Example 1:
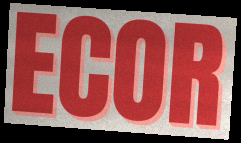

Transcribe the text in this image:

ECOR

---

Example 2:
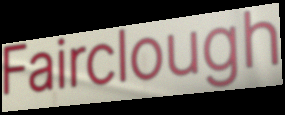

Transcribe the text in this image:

Fairclough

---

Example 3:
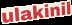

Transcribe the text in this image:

ulakinil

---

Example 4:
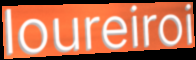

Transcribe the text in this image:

loureiroi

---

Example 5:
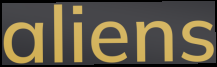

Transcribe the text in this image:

aliens